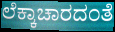
ಲೆಕ್ಕಾಚಾರದಂತೆ